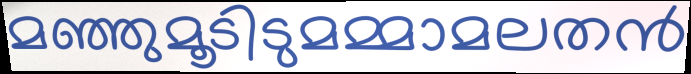
മഞ്ഞുമൂടിടുമമ്മാമലതൻ